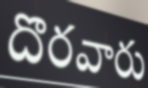
దొరవారు